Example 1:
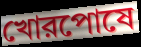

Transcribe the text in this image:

খোরপোষে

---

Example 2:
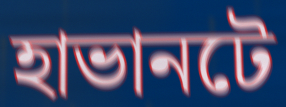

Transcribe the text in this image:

হাভানটে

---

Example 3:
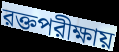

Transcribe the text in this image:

রক্তপরীক্ষায়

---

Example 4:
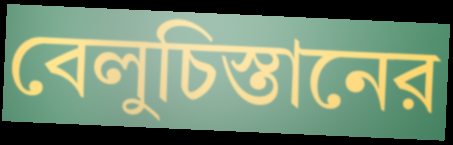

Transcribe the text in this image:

বেলুচিস্তানের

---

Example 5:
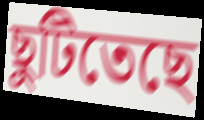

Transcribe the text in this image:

ছুটিতেছে